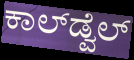
ಕಾಲ್‌ಡ್ವೆಲ್